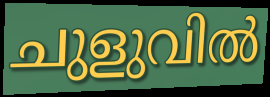
ചുളുവിൽ